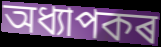
অধ্যাপকৰ